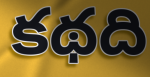
కథది